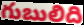
గుబులిది